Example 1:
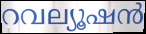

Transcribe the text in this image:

റവല്യൂഷൻ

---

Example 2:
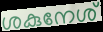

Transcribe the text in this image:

ശകുനേശ്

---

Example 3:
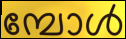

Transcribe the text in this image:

മ്പോൾ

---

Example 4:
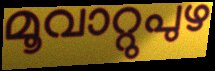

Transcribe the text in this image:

മൂവാറ്റുപുഴ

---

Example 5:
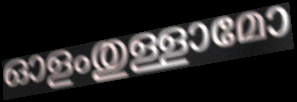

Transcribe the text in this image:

ഓളംതുള്ളാമോ